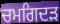
ਚਮਗਿਦੜ